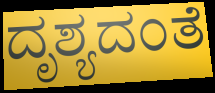
ದೃಶ್ಯದಂತೆ